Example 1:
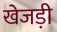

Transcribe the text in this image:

खेजड़ी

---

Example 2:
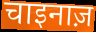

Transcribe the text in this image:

चाइनाज़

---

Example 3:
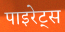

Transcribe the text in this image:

पाइरेट्स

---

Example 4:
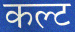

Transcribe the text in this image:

कल्ट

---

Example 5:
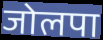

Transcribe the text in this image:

जोलपा